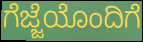
ಗೆಜ್ಜೆಯೊಂದಿಗೆ